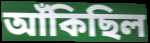
আঁকিছিল